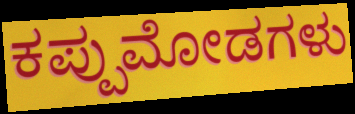
ಕಪ್ಪುಮೋಡಗಳು